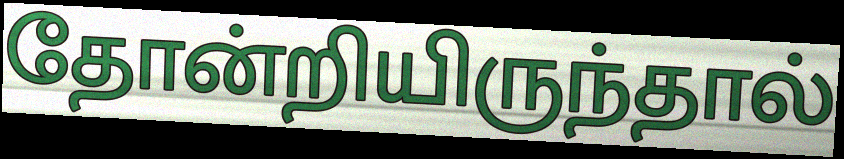
தோன்றியிருந்தால்